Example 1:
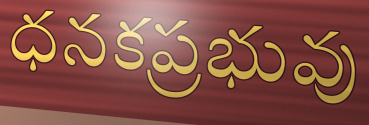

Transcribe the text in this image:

ధనకప్రభువు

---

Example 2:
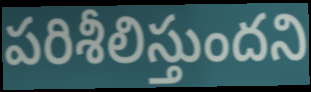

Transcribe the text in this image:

పరిశీలిస్తుందని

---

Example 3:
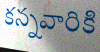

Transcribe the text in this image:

కన్నవారికి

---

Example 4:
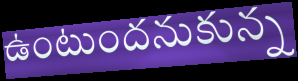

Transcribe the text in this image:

ఉంటుందనుకున్న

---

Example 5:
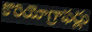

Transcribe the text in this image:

కొరియోగ్రాఫర్లు